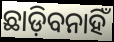
ଛାଡ଼ିବନାହିଁ